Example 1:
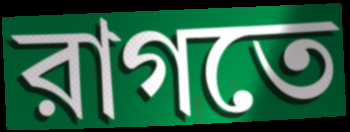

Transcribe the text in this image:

রাগতে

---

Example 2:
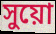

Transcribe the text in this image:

সুয়ো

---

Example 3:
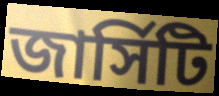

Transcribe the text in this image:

জার্সিটি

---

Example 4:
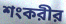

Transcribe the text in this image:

শংকরীর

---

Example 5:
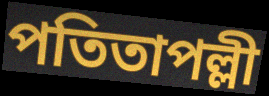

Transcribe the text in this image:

পতিতাপল্লী